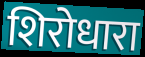
शिरोधारा